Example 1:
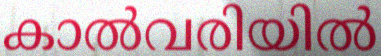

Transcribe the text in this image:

കാൽവരിയിൽ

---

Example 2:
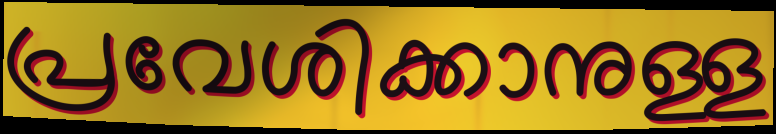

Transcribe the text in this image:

പ്രവേശിക്കാനുള്ള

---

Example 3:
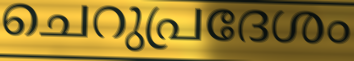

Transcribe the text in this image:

ചെറുപ്രദേശം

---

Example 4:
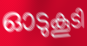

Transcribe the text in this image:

ഓടുകൂടി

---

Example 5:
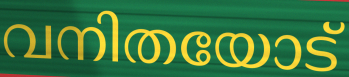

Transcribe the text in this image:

വനിതയോട്